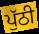
ਪੁੱਠੀ